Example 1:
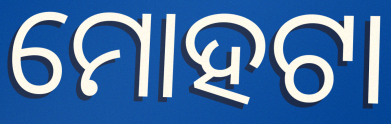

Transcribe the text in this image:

ମୋହଟା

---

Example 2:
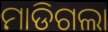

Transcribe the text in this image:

ମାଡିଗଲା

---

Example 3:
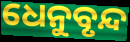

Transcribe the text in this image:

ଧେନୁବୃନ୍ଦ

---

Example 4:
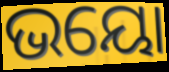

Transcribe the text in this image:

ଭୟୋ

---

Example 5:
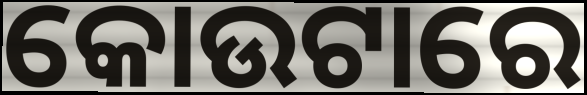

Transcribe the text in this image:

କୋଉଟାରେ